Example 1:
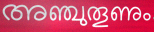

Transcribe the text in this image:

അഞ്ചുതൂണും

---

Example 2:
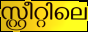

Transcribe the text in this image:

സ്റ്റ്രീറ്റിലെ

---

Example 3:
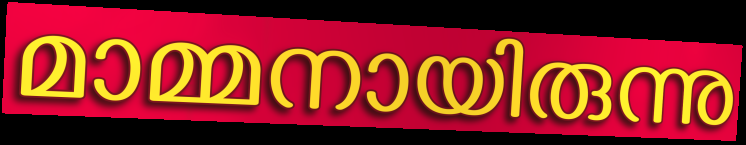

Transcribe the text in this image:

മാമ്മനായിരുന്നു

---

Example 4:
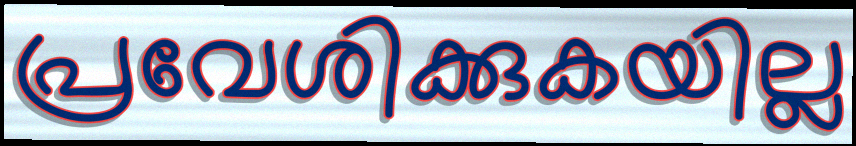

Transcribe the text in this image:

പ്രവേശിക്കുകയില്ല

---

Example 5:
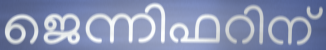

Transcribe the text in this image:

ജെന്നിഫറിന്